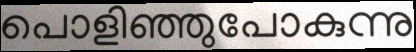
പൊളിഞ്ഞുപോകുന്നു